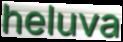
heluva